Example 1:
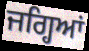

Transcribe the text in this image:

ਜਗ੍ਹਿਆਂ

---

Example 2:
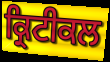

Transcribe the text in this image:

ਕ੍ਰਿਟੀਕਲ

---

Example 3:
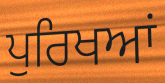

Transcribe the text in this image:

ਪੁਰਿਖਆਂ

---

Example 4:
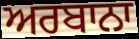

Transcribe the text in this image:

ਅਰਬਾਨਾ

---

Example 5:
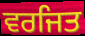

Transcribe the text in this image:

ਵਰਜਿਤ